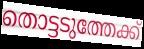
തൊട്ടടുത്തേക്ക്